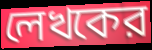
লেখকের